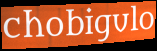
chobigulo